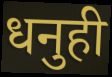
धनुही